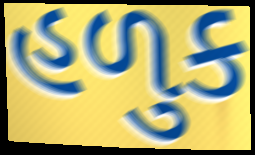
હળુક